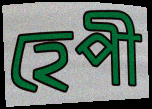
হেপী